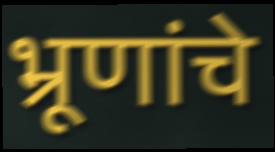
भ्रूणांचे